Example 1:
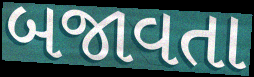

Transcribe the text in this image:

બજાવતા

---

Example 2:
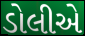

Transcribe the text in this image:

ડોલીએ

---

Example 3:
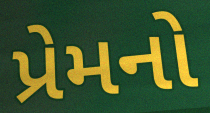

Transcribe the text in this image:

પ્રેમનો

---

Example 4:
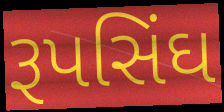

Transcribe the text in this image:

રૂપસિંઘ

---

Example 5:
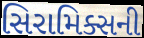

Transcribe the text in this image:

સિરામિક્સની